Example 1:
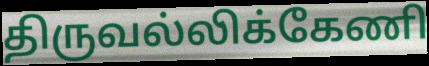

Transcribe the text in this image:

திருவல்லிக்கேணி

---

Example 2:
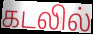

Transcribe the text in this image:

கடலில்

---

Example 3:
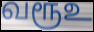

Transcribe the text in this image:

வரூஉ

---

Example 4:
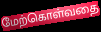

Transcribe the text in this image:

மேற்கொள்வதை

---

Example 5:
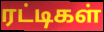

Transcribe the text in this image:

ரட்டிகள்